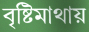
বৃষ্টিমাথায়